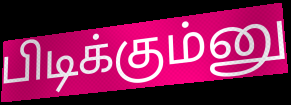
பிடிக்கும்னு